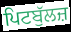
ਪਿਟਬੁੱਲਜ਼